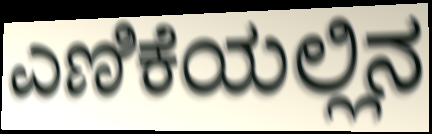
ಎಣಿಕೆಯಲ್ಲಿನ